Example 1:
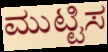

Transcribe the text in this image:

ಮುಟ್ಟಿಸ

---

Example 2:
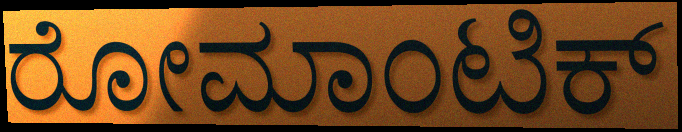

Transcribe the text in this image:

ರೋಮಾಂಟಿಕ್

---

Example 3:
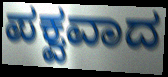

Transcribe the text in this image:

ಪಕ್ವವಾದ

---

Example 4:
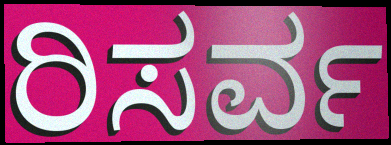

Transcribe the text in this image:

ರಿಸರ್ವ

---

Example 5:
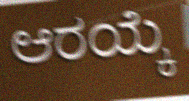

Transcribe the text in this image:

ಆರಯ್ಕೆ